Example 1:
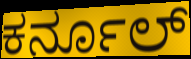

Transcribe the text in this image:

ಕರ್ನೂಲ್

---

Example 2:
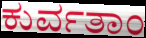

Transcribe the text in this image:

ಕುರ್ವತಾಂ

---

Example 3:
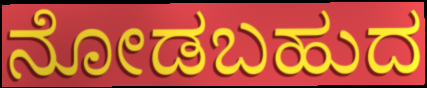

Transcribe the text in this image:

ನೋಡಬಹುದ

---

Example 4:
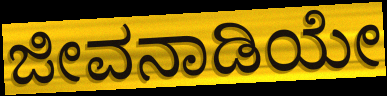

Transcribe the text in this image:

ಜೀವನಾಡಿಯೇ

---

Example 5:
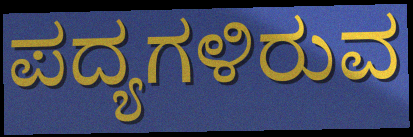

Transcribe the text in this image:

ಪದ್ಯಗಳಿರುವ